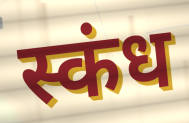
स्कंध